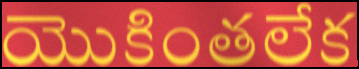
యొకింతలేక